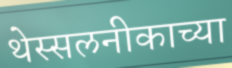
थेस्सलनीकाच्या